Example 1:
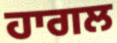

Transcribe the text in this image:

ਹਾਗਲ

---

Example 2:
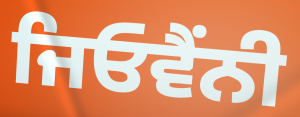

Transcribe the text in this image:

ਜਿਓਵੈਂਨੀ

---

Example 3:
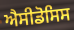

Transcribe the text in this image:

ਐਸੀਡੋਸਿਸ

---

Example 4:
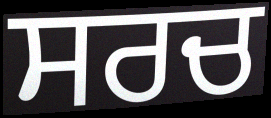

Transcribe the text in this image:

ਸਰਚ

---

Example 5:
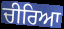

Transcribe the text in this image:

ਚੀਰਿਆ